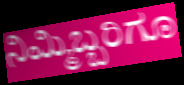
ನಿಮ್ಮಿಬ್ಬರಿಗೂ